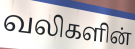
வலிகளின்